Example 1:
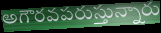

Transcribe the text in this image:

అగౌరవపరుస్తున్నారు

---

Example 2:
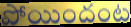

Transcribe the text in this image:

పోయిందంట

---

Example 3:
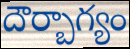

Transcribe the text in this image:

దౌర్బాగ్యం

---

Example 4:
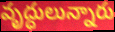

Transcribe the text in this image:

వృద్ధులున్నారు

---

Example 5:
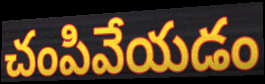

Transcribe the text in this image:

చంపివేయడం